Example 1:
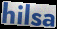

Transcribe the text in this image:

hilsa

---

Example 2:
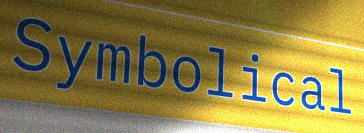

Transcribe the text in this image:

Symbolical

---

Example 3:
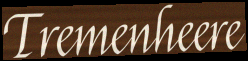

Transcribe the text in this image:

Tremenheere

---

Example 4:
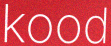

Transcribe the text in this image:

kood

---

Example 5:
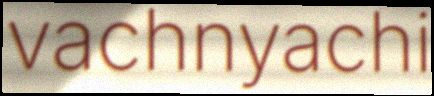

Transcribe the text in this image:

vachnyachi